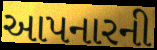
આપનારની